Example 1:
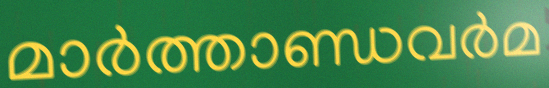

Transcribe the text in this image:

മാർത്താണ്ഡവർമ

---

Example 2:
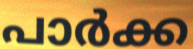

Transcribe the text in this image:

പാർക്ക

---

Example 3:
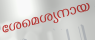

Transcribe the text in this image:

ശേമെശ്യനായ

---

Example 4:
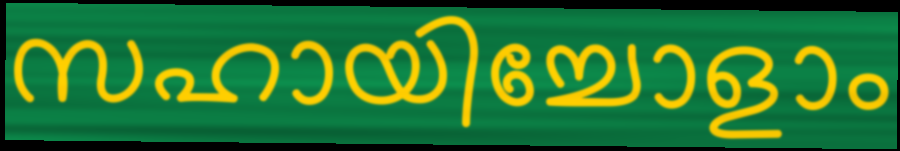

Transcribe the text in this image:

സഹായിച്ചോളാം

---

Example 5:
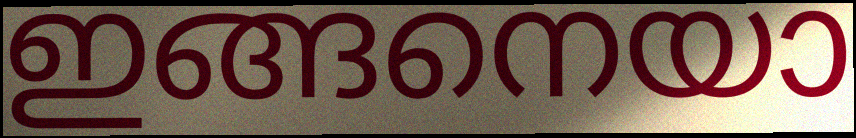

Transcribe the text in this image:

ഇങ്ങനെയാ